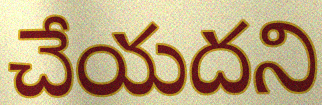
చేయదని